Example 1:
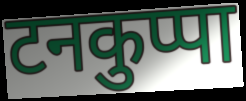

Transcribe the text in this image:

टनकुप्पा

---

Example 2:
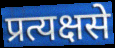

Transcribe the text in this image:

प्रत्यक्षसे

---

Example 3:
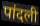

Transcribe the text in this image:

पांदली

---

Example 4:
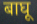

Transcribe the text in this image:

बाघू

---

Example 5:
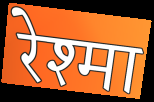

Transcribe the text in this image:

रेश्मा